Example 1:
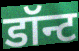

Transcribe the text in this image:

डॉन्ट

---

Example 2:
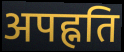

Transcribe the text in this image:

अपह्नति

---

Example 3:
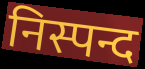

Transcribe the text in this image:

निस्पन्द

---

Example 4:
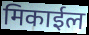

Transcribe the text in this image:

मिकाईल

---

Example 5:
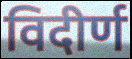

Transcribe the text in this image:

विदीर्ण